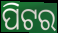
ପିଟର